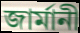
জাৰ্মানী